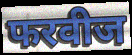
फरवीज